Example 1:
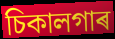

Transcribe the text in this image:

চিকালগাৰ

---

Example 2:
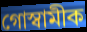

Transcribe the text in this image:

গোস্বামীক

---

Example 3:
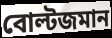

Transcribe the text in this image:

বোল্টজমান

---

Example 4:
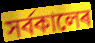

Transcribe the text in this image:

সৰ্বকালেৰ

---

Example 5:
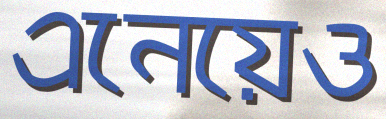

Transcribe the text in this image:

এনেয়েও